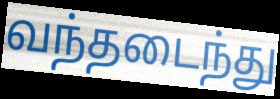
வந்தடைந்து